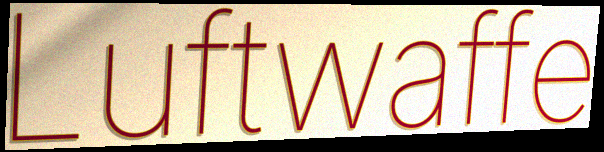
Luftwaffe